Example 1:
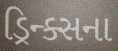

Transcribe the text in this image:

ડ્રિન્ક્સના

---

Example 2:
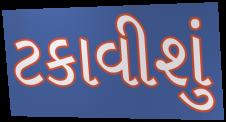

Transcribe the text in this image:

ટકાવીશું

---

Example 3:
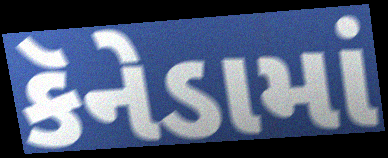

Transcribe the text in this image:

કૅનેડામાં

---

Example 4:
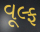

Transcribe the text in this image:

વૂલ્ફ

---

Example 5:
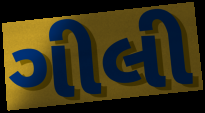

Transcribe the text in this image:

ગીલી